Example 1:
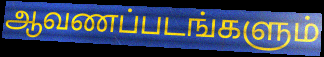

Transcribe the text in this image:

ஆவணப்படங்களும்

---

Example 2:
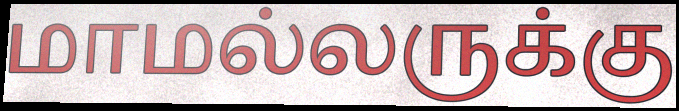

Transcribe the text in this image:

மாமல்லருக்கு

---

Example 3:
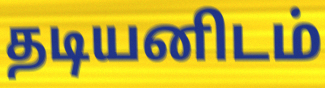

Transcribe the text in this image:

தடியனிடம்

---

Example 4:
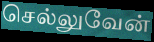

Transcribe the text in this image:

செல்லுவேன்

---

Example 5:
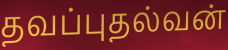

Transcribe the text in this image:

தவப்புதல்வன்